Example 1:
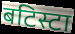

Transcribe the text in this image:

बटिस्टा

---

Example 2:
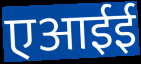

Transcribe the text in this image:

एआईई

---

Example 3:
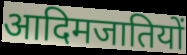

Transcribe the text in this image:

आदिमजातियों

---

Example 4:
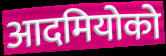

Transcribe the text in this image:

आदमियोको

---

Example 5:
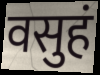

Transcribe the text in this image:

वसुहं